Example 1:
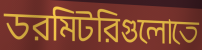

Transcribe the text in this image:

ডরমিটরিগুলোতে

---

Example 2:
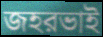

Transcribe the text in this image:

জহরভাই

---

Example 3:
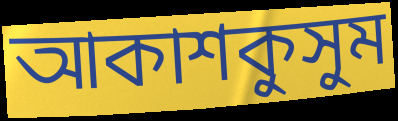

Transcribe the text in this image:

আকাশকুসুম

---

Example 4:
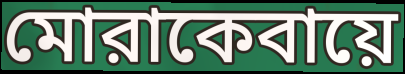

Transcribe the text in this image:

মোরাকেবায়ে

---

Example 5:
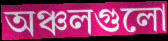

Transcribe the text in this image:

অঞ্চলগুলো